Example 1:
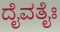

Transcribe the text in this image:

ದೈವತೈಃ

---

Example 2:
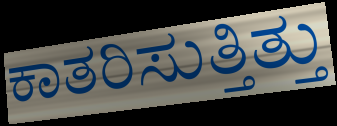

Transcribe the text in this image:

ಕಾತರಿಸುತ್ತಿತ್ತು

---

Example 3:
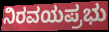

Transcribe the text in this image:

ನಿರವಯಪ್ರಭು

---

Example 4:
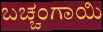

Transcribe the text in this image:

ಬಚ್ಚಂಗಾಯಿ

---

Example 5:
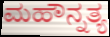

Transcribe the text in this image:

ಮಹೌನ್ನತ್ಯ